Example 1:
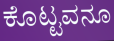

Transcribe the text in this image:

ಕೊಟ್ಟವನೂ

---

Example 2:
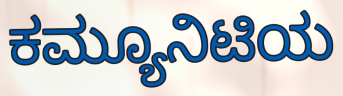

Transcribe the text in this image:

ಕಮ್ಯೂನಿಟಿಯ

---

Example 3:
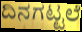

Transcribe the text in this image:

ದಿನಗಟ್ಟಲೆ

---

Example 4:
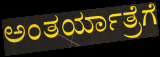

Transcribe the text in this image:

ಅಂತರ್ಯಾತ್ರೆಗೆ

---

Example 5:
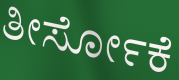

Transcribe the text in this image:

ತೀರ್ಸೋಕೆ